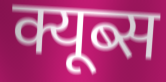
क्यूब्स